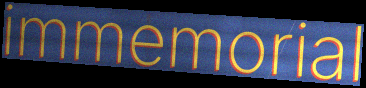
immemorial